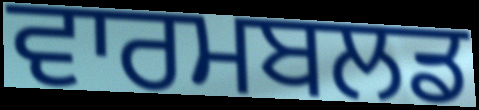
ਵਾਰਮਬਲਡ